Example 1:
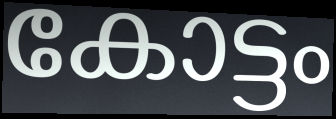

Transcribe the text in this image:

കോട്ടം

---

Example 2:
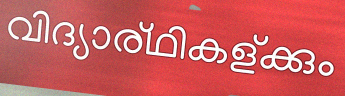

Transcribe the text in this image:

വിദ്യാര്ഥികള്ക്കും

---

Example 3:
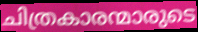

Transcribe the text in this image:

ചിത്രകാരന്മാരുടെ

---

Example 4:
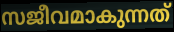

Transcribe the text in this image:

സജീവമാകുന്നത്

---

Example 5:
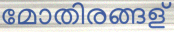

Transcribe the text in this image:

മോതിരങ്ങള്